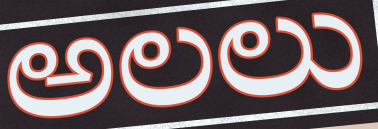
అలలు